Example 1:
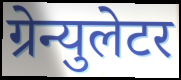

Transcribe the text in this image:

ग्रेन्युलेटर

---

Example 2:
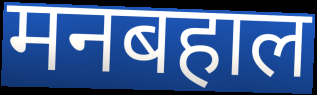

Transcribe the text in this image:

मनबहाल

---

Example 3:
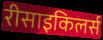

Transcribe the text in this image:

रीसाइकिलर्स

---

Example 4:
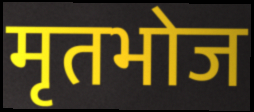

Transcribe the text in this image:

मृतभोज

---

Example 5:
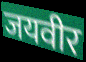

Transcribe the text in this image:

जयवीर